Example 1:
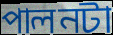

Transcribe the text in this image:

পালনটা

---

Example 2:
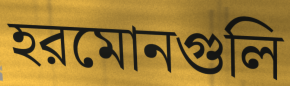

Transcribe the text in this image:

হরমোনগুলি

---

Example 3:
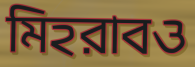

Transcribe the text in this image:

মিহরাবও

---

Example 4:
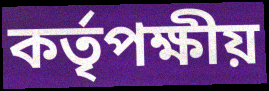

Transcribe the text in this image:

কর্তৃপক্ষীয়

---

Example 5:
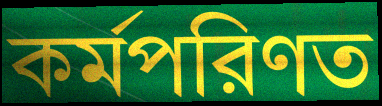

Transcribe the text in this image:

কর্মপরিণত